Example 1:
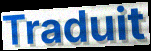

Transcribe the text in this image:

Traduit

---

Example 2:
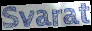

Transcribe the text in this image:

Svarat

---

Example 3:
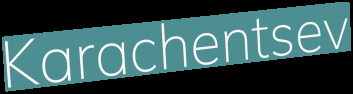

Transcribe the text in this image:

Karachentsev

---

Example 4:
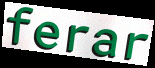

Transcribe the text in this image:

ferar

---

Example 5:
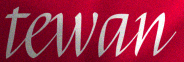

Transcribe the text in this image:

tewan